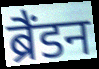
ब्रैंडन